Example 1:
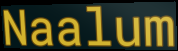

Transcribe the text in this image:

Naalum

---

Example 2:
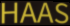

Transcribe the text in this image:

HAAS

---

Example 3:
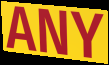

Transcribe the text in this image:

ANY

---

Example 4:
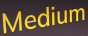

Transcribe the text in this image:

Medium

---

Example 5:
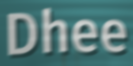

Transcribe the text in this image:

Dhee